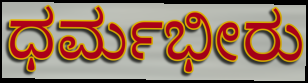
ಧರ್ಮಭೀರು